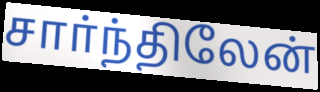
சார்ந்திலேன்